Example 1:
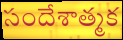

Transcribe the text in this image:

సందేశాత్మక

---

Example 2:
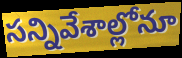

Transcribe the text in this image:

సన్నివేశాల్లోనూ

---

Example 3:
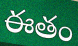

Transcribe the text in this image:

ఈతం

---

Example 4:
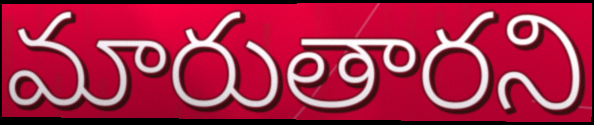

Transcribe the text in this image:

మారుతారని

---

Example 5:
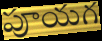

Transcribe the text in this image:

పూయగ